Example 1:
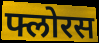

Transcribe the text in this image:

फ्लोरस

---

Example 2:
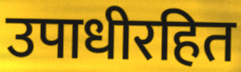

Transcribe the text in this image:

उपाधीरहित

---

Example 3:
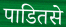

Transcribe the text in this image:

पाडितसे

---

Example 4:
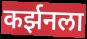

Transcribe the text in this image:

कर्झनला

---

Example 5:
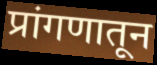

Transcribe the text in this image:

प्रांगणातून